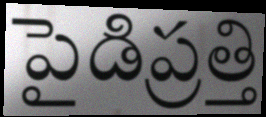
పైడిప్రత్తి